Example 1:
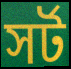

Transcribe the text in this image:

সর্ট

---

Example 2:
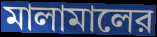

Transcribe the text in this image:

মালামালের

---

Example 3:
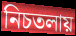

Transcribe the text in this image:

নিচতলায়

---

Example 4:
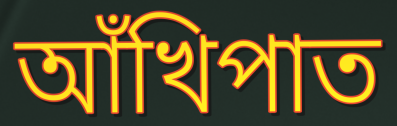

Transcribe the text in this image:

আঁখিপাত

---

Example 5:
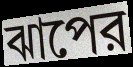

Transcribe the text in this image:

ঝাপের